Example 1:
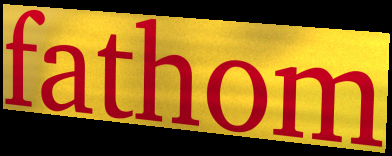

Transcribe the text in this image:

fathom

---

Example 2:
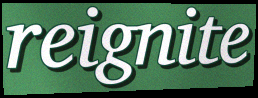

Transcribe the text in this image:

reignite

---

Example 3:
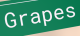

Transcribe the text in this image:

Grapes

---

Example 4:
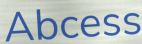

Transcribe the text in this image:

Abcess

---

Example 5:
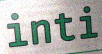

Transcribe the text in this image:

inti